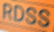
RDSS